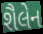
શૈલેન